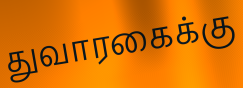
துவாரகைக்கு